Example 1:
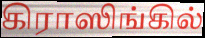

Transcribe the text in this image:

கிராஸிங்கில்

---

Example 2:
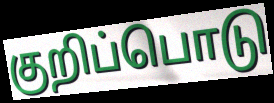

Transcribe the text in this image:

குறிப்பொடு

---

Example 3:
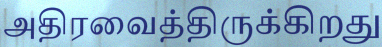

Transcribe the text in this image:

அதிரவைத்திருக்கிறது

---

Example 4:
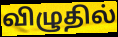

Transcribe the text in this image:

விழுதில்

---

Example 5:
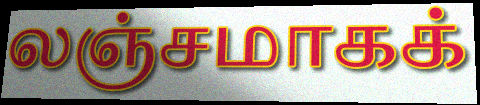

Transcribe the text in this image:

லஞ்சமாகக்